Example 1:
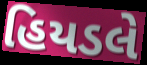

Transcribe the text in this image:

હિયડલે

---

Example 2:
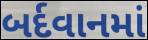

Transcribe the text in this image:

બર્દવાનમાં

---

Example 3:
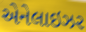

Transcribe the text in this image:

એનેલાઇઝર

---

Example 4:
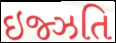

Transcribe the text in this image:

ઇજ્ઝતિ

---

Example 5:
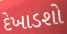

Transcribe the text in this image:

દેખાડશો